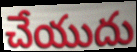
చేయుదు